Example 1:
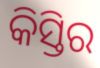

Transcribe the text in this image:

କିସ୍ତିର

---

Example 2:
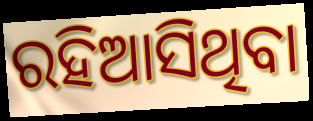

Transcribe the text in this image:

ରହିଆସିଥିବା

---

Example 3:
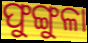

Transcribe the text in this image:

ଫୁଙ୍ଗୁଳା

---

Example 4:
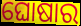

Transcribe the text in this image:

ଘୋଷାର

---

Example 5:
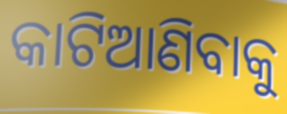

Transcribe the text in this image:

କାଟିଆଣିବାକୁ